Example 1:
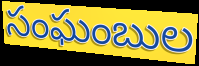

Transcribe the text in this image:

సంఘంబుల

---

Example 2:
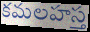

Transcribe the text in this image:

కమలహస్త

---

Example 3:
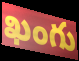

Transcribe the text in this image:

ఖంగు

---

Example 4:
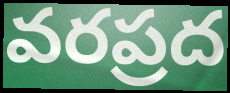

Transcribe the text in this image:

వరప్రద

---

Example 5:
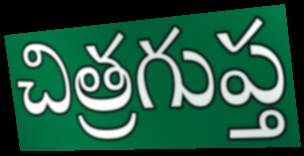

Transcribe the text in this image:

చిత్రగుప్త